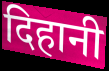
दिहानी